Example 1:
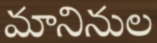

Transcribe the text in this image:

మానినుల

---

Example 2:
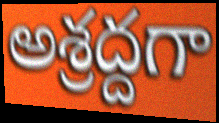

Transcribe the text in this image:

అశ్రద్దగా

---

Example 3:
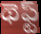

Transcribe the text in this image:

థెఫ్ట్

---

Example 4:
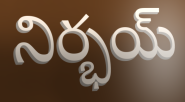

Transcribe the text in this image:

నిర్భయ్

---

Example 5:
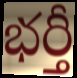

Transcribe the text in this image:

భర్తీ